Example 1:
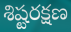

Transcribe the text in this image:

శిష్టరక్షణ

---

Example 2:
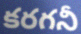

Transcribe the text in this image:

కరగనీ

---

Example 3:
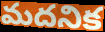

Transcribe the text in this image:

మదనిక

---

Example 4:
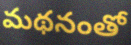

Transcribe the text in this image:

మథనంతో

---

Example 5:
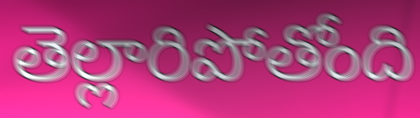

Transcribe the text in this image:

తెల్లారిపోతోంది